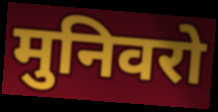
मुनिवरो